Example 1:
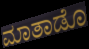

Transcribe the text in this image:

ಮಾತಾಡೊ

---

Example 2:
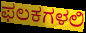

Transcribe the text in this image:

ಫಲಕಗಳಲಿ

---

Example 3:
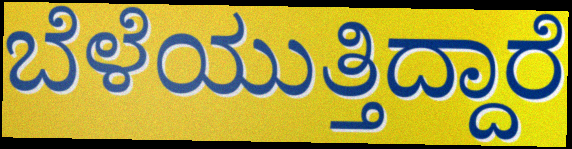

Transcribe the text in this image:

ಬೆಳೆಯುತ್ತಿದ್ದಾರೆ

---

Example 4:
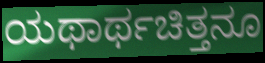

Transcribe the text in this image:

ಯಥಾರ್ಥಚಿತ್ತನೂ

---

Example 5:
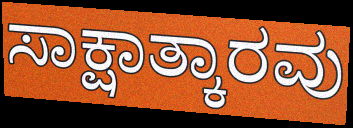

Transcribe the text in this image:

ಸಾಕ್ಷಾತ್ಕಾರವು